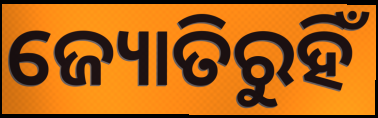
ଜ୍ୟୋତିରୁହିଁ